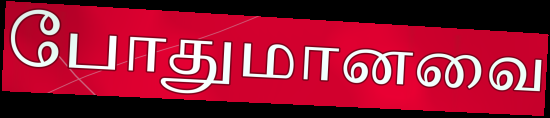
போதுமானவை